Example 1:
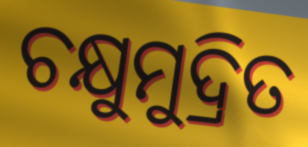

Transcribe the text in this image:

ଚକ୍ଷୁମୁଦ୍ରିତ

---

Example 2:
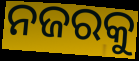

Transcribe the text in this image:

ନଜରକୁ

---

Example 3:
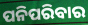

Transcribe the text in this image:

ପନିପରିବାର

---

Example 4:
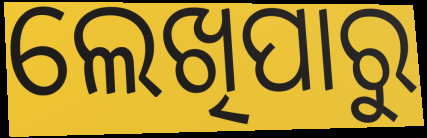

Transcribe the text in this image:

ଲେଖିପାରୁ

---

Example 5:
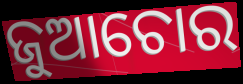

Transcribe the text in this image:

ଜୁଆଚୋର